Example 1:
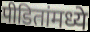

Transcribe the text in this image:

पीडितांमध्ये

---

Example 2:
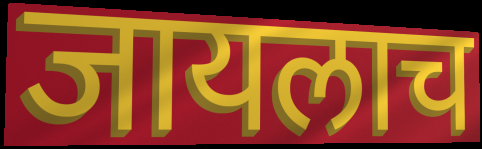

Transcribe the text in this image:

जायलाच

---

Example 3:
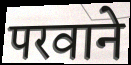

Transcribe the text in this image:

परवाने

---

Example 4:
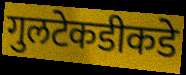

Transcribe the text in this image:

गुलटेकडीकडे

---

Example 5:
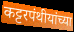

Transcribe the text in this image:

कट्टरपंथीयांच्या